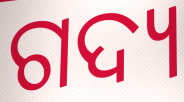
ଗଦ୍ୟ